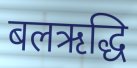
बलऋद्धि